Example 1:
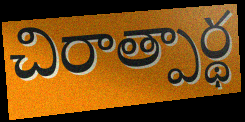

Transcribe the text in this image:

చిరాత్పార్థ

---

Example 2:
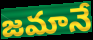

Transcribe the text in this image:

జమానే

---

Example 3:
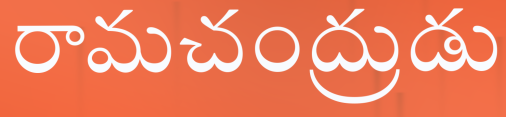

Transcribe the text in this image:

రామచంద్రుడు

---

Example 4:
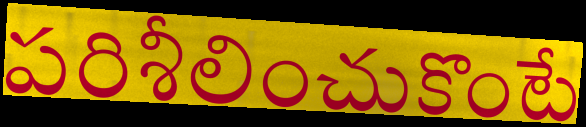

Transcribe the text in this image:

పరిశీలించుకొంటే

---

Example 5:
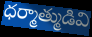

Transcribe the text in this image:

ధర్మాత్ముడివి